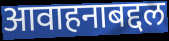
आवाहनाबद्दल